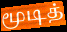
மூடித்